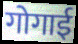
गोगाई